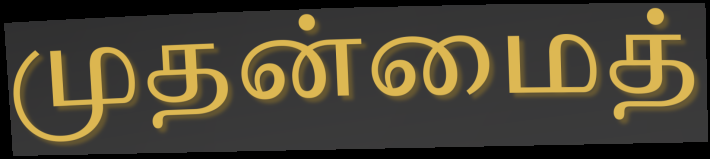
முதன்மைத்